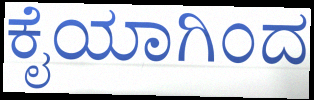
ಕೈಯಾಗಿಂದ